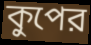
কুপের